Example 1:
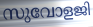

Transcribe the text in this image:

സുവോളജി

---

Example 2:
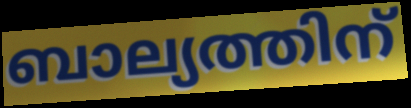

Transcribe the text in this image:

ബാല്യത്തിന്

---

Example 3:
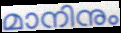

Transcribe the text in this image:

മാനിനും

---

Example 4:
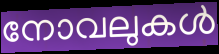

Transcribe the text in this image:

നോവലുകൾ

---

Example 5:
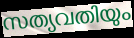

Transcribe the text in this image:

സത്യവതിയും